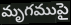
మృగముపై